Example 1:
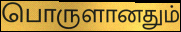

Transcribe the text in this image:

பொருளானதும்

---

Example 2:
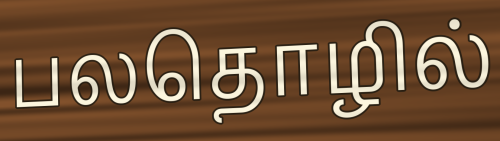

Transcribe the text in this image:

பலதொழில்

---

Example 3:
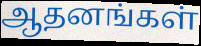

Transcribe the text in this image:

ஆதனங்கள்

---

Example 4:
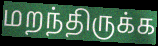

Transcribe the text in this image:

மறந்திருக்க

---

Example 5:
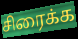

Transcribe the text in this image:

சிரைக்க